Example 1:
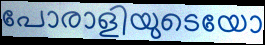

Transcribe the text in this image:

പോരാളിയുടെയോ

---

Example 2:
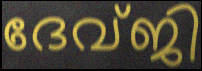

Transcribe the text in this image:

ദേവ്ജി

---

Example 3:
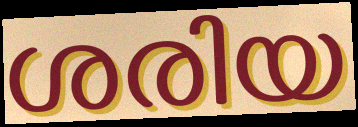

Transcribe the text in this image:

ശരിയ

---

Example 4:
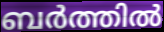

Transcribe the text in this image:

ബർത്തിൽ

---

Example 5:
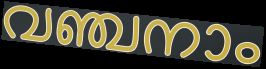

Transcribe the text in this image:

വഞ്ചനാം